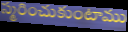
స్మరించుకుంటాము